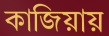
কাজিয়ায়